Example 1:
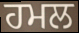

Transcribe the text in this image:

ਹਮਲ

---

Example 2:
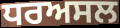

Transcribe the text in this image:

ਧਰਅਸਲ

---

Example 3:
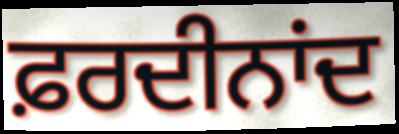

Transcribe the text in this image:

ਫ਼ਰਦੀਨਾਂਦ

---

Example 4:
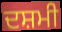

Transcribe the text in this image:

ਦਸ਼ਮੀ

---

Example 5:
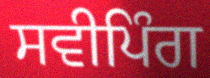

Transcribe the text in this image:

ਸਵੀਪਿੰਗ